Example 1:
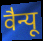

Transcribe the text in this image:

वैन्यू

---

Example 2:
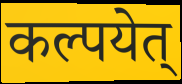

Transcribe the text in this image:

कल्पयेत्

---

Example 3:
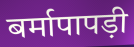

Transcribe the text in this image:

बर्मापापड़ी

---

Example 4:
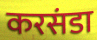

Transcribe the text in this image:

करसंडा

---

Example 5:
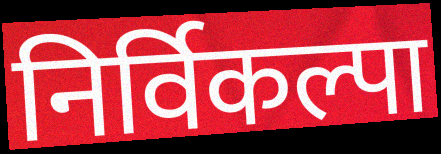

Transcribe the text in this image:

निर्विकल्पा